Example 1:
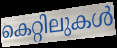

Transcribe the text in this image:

കെറ്റിലുകൾ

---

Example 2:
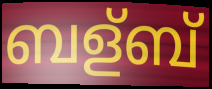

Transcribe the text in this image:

ബള്ബ്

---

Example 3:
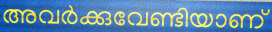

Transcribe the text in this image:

അവർക്കുവേണ്ടിയാണ്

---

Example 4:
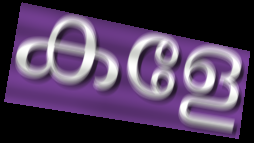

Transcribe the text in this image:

കളേ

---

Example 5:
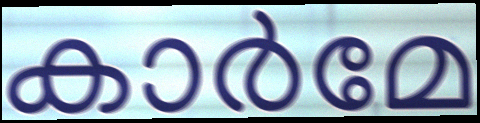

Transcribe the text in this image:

കാർമേ